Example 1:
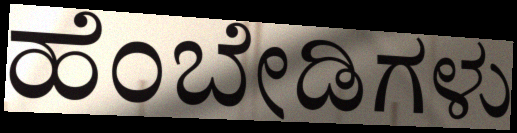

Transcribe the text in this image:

ಹೆಂಬೇಡಿಗಳು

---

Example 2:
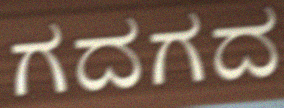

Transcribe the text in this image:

ಗದಗದ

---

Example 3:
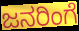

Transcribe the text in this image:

ಜನರಿಂಗೆ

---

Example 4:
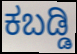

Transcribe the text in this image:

ಕಬಡ್ಡಿ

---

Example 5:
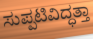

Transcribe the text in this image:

ಸುಪ್ಪಟಿವಿದ್ಧತ್ತಾ